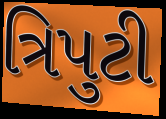
ત્રિપુટી